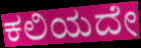
ಕಲಿಯದೇ